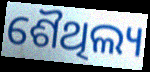
ଶୈଥିଲ୍ୟ